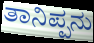
ತಾನಿಪ್ಪನು